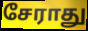
சேராது